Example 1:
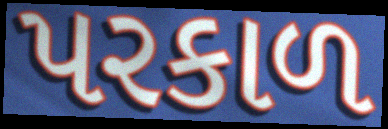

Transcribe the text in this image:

પરકાળ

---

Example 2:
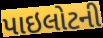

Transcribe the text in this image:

પાઇલોટની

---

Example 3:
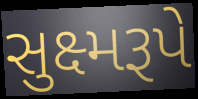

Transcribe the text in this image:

સુક્ષ્મરૂપે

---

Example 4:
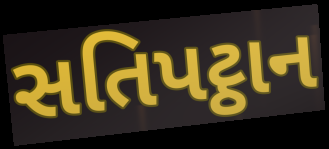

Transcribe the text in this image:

સતિપટ્ઠાન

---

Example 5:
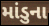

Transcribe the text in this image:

માંડુના